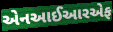
એનઆઈઆરએફ